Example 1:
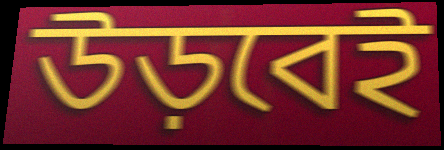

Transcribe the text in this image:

উড়বেই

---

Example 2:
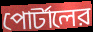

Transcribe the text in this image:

পোর্টালের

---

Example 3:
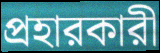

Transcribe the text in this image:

প্রহারকারী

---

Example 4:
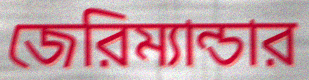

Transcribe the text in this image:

জেরিম্যান্ডার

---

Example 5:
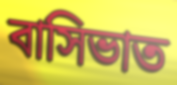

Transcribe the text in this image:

বাসিভাত